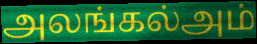
அலங்கல்அம்